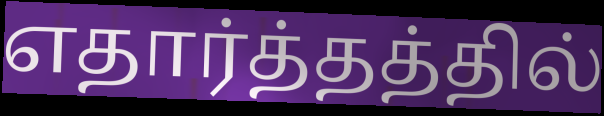
எதார்த்தத்தில்